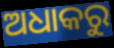
ଅଧାକରୁ